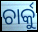
ଚାର୍କୁ